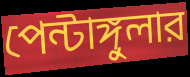
পেন্টাঙ্গুলার